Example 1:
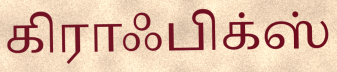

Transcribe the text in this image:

கிராஃபிக்ஸ்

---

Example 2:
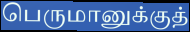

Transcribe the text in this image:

பெருமானுக்குத்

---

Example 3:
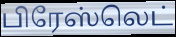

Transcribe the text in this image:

பிரேஸ்லெட்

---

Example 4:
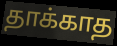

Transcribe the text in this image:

தாக்காத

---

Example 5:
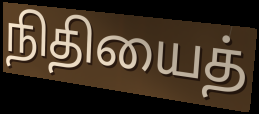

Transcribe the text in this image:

நிதியைத்